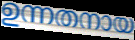
ഉന്നതനായ